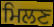
ਮਿਲਣ